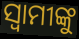
ସ୍ବାମୀଙ୍କୁ